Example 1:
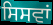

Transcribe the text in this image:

ਸਿਸਵਾਂ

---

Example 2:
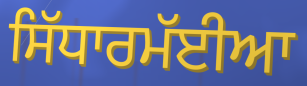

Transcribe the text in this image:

ਸਿੱਧਾਰਮੱਈਆ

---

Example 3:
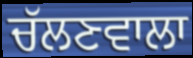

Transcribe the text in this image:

ਚੱਲਣਵਾਲਾ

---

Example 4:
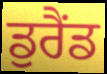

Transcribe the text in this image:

ਡੁਰੈਂਡ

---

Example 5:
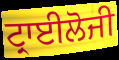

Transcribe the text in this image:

ਟ੍ਰਾਈਲੋਜੀ